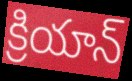
క్రియాన్